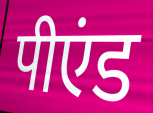
पीएंड